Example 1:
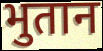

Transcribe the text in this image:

भुतान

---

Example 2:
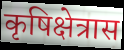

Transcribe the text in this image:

कृषिक्षेत्रास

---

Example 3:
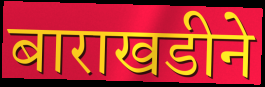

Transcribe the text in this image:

बाराखडीने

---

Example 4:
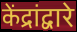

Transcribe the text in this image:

केंद्रांद्वारे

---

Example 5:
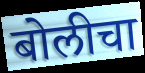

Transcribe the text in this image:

बोलीचा